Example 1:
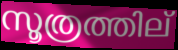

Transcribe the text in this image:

സൂത്രത്തില്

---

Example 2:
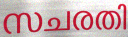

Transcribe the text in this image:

സചരതി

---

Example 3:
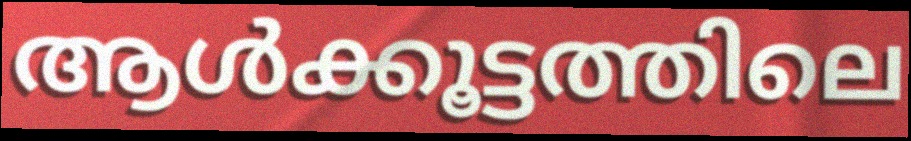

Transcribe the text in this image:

ആൾക്കൂട്ടത്തിലെ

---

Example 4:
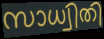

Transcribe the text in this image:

സാധ്വിതി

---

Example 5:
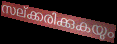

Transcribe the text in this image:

സല്ക്കരിക്കുകയും